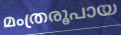
മംത്രരൂപായ